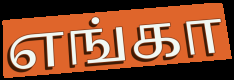
எங்கா